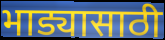
भाड्यासाठी